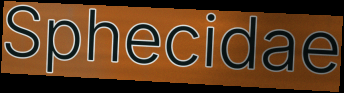
Sphecidae